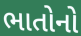
ભાતોનો